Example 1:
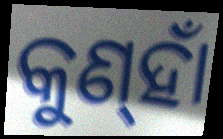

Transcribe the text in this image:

କୁଣ୍‌ହାଁ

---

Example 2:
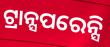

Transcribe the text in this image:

ଟ୍ରାନ୍ସପରେନ୍ସି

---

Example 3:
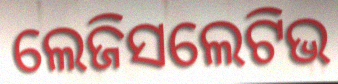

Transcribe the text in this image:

ଲେଜିସଲେଟିଭ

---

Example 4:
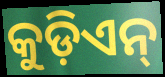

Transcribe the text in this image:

କୁଡ଼ିଏନ୍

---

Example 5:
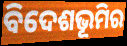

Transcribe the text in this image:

ବିଦେଶଭୂମିର